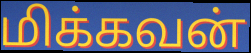
மிக்கவன்